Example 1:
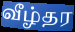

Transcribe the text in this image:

வீழ்தர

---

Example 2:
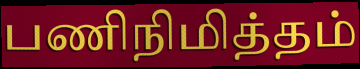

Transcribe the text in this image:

பணிநிமித்தம்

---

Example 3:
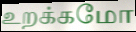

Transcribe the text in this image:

உறக்கமோ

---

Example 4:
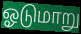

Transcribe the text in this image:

ஓடுமாறு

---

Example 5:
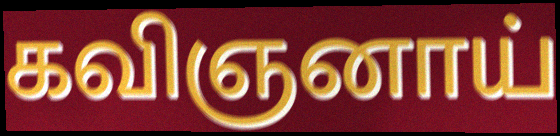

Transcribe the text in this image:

கவிஞனாய்